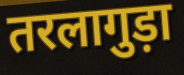
तरलागुड़ा